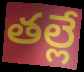
తల్లే